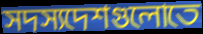
সদস্যদেশগুলোতে